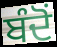
ਬੰਦੋਂ